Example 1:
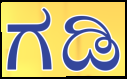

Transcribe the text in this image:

ಗಡಿ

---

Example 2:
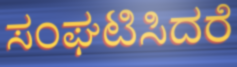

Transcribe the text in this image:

ಸಂಘಟಿಸಿದರೆ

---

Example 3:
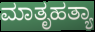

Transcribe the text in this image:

ಮಾತೃಹತ್ಯಾ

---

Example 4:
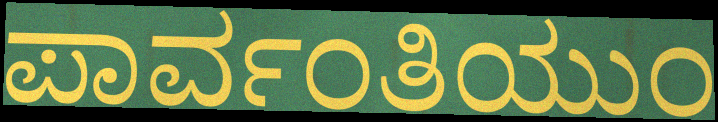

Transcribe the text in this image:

ಪಾರ್ವಂತಿಯುಂ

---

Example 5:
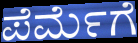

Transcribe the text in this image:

ಪೆರ್ಮೆಗೆ